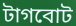
টাগবোট